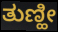
ತುಣ್ಹೀ